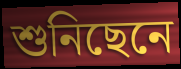
শুনিছেনে